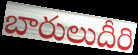
బారులుదీరి